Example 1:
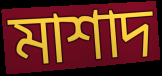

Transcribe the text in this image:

মাশাদ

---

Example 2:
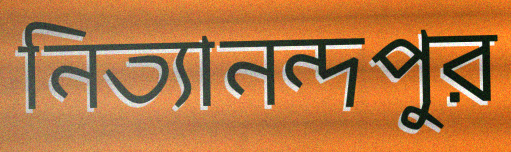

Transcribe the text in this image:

নিত্যানন্দপুর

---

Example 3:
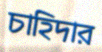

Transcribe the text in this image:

চাহিদার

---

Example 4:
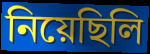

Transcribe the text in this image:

নিয়েছিলি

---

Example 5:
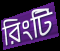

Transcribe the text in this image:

রিংটি